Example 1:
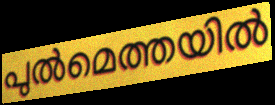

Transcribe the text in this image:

പുൽമെത്തയിൽ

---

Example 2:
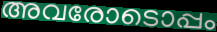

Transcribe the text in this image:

അവരോടൊപ്പം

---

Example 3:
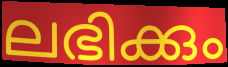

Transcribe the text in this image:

ലഭിക്കും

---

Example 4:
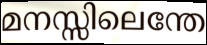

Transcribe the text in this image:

മനസ്സിലെന്തേ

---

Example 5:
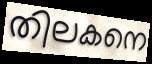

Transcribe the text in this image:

തിലകനെ